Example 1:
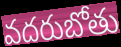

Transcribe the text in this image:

వదరుబోతు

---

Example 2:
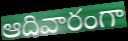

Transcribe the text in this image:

ఆదివారంగా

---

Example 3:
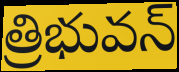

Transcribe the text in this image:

త్రిభువన్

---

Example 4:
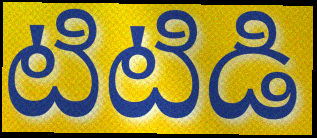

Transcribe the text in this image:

టిటిడి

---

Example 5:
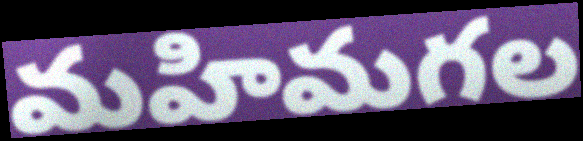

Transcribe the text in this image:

మహిమగల